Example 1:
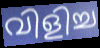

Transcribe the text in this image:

വിളിച്ച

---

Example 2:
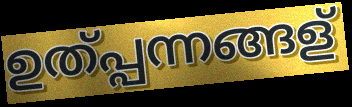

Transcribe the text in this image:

ഉത്പ്പന്നങ്ങള്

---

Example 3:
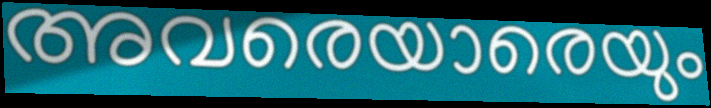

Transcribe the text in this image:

അവരെയാരെയും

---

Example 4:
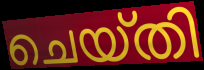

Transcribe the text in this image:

ചെയ്‌തി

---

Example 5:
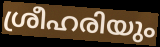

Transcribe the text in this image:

ശ്രീഹരിയും